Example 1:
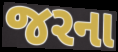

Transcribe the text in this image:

જરના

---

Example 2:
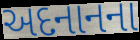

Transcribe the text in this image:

અદનાનના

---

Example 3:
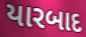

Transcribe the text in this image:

યારબાદ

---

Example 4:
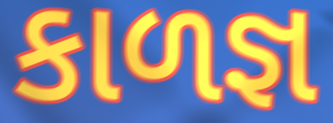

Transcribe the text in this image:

કાળજ્ઞ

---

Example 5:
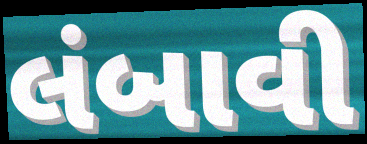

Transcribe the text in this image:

લંબાવી